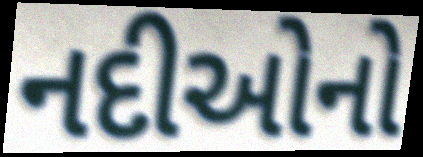
નદીઓનો